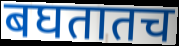
बघतातच